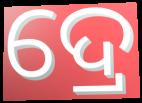
ଦ୍ରେ